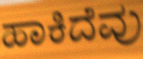
ಹಾಕಿದೆವು